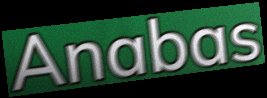
Anabas